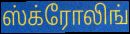
ஸ்க்ரோலிங்